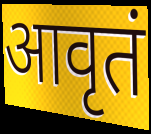
आवृतं